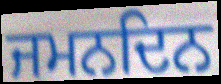
ਜਮਨਦਿਨ